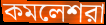
কমলেশরা